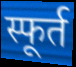
स्फूर्त